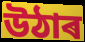
উঠাৰ